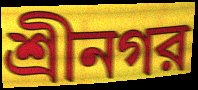
শ্রীনগর